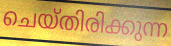
ചെയ്തിരിക്കുന്ന